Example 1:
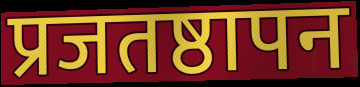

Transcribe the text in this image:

प्रजतष्ठापन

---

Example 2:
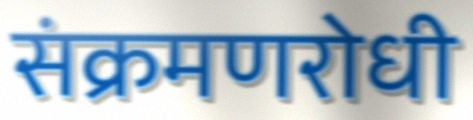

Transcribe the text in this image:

संक्रमणरोधी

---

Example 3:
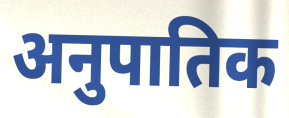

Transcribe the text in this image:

अनुपातिक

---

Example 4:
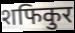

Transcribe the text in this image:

शफिकुर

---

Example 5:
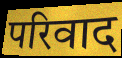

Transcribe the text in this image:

परिवाद